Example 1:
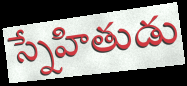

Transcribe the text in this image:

స్నేహితుడు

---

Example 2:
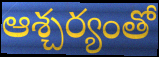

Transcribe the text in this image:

ఆశ్చర్యంతో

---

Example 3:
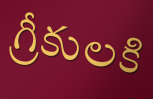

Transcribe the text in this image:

గ్రీకులకి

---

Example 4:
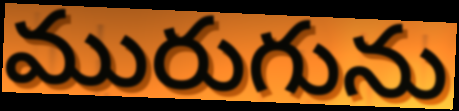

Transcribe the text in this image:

మురుగును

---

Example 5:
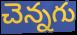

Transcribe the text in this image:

చెన్నగు